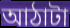
আঠাটা